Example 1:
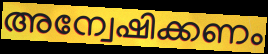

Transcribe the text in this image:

അന്വേഷിക്കണം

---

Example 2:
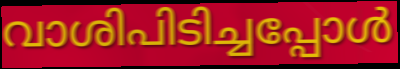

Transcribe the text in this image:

വാശിപിടിച്ചപ്പോൾ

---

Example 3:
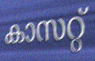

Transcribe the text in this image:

കാസറ്റ്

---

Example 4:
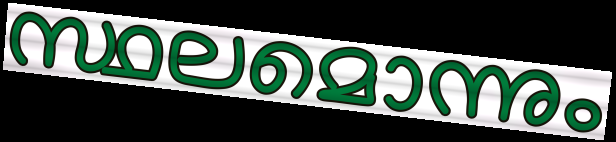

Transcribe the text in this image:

സ്ഥലമൊന്നും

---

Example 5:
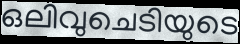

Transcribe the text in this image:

ഒലിവുചെടിയുടെ